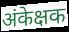
अंकेक्षक